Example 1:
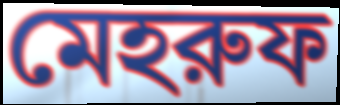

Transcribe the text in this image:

মেহরুফ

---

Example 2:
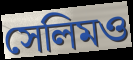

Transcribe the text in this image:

সেলিমও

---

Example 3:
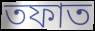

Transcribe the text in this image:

তফাত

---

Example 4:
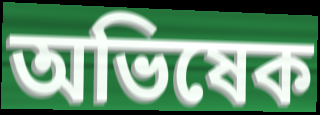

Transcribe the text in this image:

অভিষেক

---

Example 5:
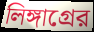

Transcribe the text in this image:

লিঙ্গাগ্রের